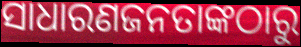
ସାଧାରଣଜନତାଙ୍କଠାରୁ